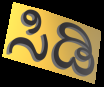
ಸಿಡಿ